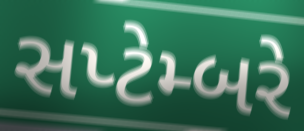
સપ્ટેમ્બરે